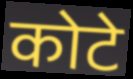
कोटे